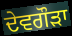
ਦੇਵਗੌੜਾ